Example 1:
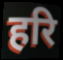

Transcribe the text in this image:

हरि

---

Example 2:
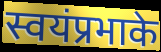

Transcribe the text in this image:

स्वयंप्रभाके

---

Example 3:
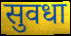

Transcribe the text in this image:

सुवधा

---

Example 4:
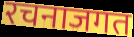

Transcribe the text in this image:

रचनाजगत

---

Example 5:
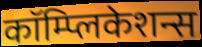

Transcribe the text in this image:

कॉम्प्लिकेशन्स